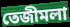
তেজীমলা